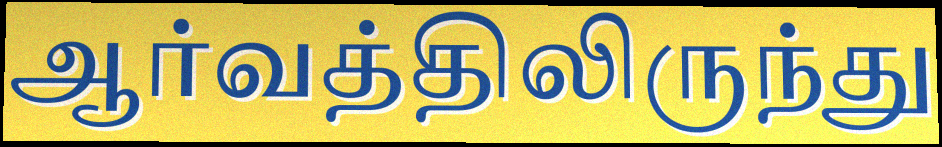
ஆர்வத்திலிருந்து